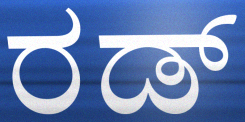
ರಡ್